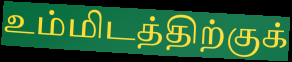
உம்மிடத்திற்குக்